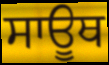
ਸਾਊਥ